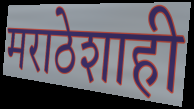
मराठेशाही